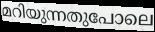
മറിയുന്നതുപോലെ